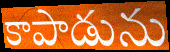
కాపాడును